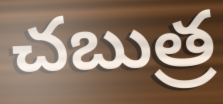
చబుత్ర